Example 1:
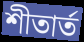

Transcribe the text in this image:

শীতাৰ্ত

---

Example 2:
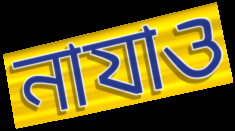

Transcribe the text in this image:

নাযাও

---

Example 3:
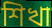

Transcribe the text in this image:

শিখা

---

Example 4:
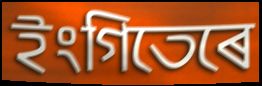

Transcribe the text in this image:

ইংগিতেৰে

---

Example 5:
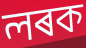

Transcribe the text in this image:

লৰক